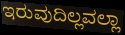
ಇರುವುದಿಲ್ಲವಲ್ಲಾ